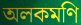
অলকমণি